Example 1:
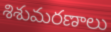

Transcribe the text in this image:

శిశుమరణాలు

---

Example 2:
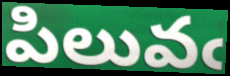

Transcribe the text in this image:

పిలువఁ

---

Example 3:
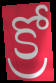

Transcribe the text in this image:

క్రో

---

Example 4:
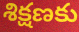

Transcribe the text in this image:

శిక్షణకు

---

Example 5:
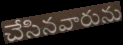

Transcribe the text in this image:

చేసినవారును